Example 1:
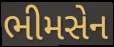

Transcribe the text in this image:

ભીમસેન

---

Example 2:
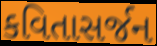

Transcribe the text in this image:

કવિતાસર્જન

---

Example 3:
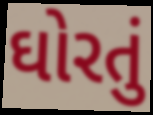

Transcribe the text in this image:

ઘોરતું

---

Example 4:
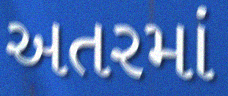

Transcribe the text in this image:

અતરમાં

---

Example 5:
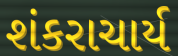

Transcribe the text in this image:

શંકરાચાર્ય